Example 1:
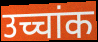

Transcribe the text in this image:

उच्चांक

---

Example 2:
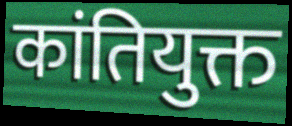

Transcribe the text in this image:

कांतियुक्त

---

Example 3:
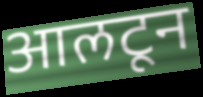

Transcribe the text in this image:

आलटून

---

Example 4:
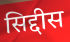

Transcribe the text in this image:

सिद्दीस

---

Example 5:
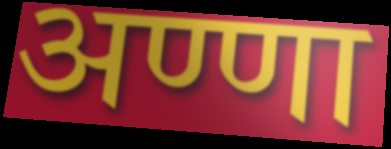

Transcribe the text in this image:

अण्णा